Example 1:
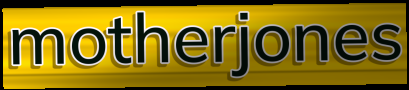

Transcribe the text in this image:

motherjones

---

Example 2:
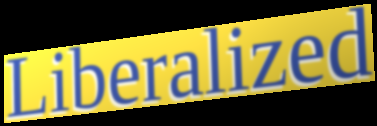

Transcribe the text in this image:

Liberalized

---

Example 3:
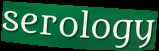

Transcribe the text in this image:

serology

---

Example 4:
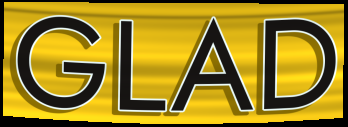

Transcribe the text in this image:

GLAD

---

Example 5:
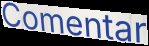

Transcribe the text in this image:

Comentar